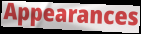
Appearances